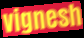
vignesh